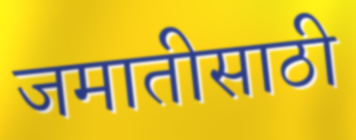
जमातीसाठी